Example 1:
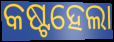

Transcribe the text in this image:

କଷ୍ଟହେଲା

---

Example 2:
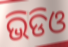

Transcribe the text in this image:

ଭିଡିଓ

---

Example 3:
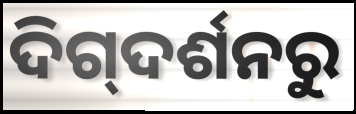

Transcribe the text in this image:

ଦିଗ୍‌ଦର୍ଶନରୁ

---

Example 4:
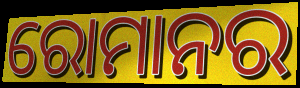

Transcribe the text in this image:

ରୋମାନର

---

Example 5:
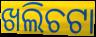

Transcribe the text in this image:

ଖଲିଚଟା